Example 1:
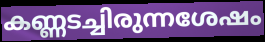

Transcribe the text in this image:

കണ്ണടച്ചിരുന്നശേഷം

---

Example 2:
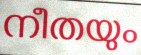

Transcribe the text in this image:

നീതയും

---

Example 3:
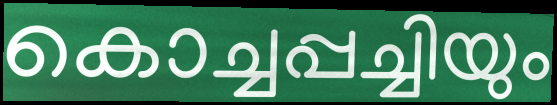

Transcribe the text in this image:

കൊച്ചപ്പച്ചിയും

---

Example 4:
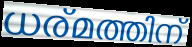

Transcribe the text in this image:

ധര്മത്തിന്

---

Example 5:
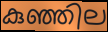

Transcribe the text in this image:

കുഞ്ഞില